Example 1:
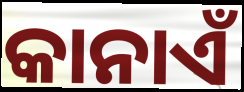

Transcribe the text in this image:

କାନାଏଁ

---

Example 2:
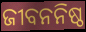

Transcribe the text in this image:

ଜୀବନନିଷ୍ଠ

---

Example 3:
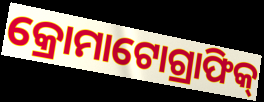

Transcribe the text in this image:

କ୍ରୋମାଟୋଗ୍ରାଫିକ୍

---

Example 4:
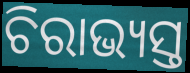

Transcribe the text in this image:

ଚିରାଭ୍ୟସ୍ତ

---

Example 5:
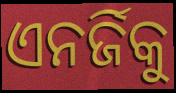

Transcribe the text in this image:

ଏନର୍ଜିକୁ